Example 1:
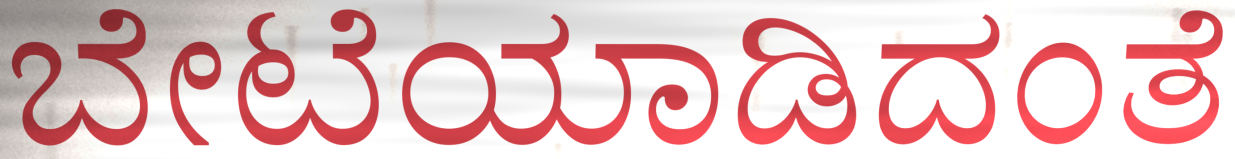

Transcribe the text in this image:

ಬೇಟೆಯಾಡಿದಂತೆ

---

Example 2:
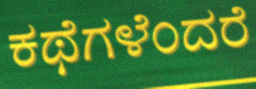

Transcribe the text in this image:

ಕಥೆಗಳೆಂದರೆ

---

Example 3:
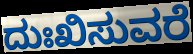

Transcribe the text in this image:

ದುಃಖಿಸುವರೆ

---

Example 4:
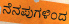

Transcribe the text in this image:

ನೆನಪುಗಳಿಂದ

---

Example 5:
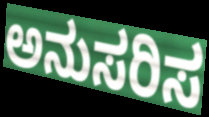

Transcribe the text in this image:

ಅನುಸರಿಸ